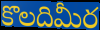
కొలదిమీర